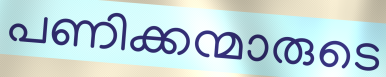
പണിക്കന്മാരുടെ